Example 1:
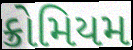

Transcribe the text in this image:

ક્રોમિયમ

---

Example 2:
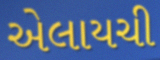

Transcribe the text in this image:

એલાયચી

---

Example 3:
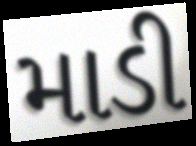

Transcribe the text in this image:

માડી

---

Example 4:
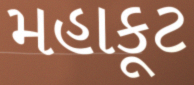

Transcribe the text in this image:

મહાકૂટ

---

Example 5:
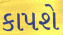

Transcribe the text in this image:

કાપશે